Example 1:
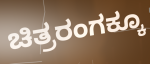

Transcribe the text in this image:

ಚಿತ್ರರಂಗಕ್ಕೂ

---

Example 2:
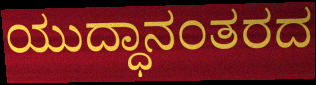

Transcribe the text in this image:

ಯುದ್ಧಾನಂತರದ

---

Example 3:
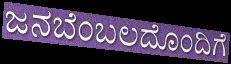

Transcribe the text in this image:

ಜನಬೆಂಬಲದೊಂದಿಗೆ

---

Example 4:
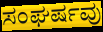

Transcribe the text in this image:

ಸಂಘರ್ಷವು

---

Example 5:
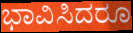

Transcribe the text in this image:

ಭಾವಿಸಿದರೂ